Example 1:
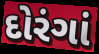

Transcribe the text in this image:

દોરંગાં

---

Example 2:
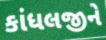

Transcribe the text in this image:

કાંધલજીને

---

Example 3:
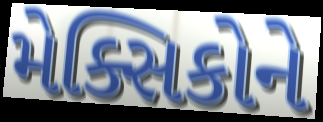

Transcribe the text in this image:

મેક્સિકોને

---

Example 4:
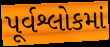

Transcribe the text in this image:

પૂર્વશ્લોકમાં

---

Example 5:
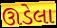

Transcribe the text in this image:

ઊડેલા